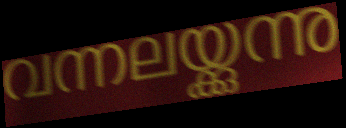
വന്നലയ്ക്കുന്നു